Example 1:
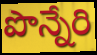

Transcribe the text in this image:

పొన్నేరి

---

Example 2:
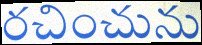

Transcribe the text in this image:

రచించును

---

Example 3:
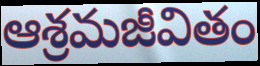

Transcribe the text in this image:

ఆశ్రమజీవితం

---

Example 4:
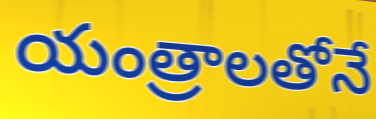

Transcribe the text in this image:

యంత్రాలతోనే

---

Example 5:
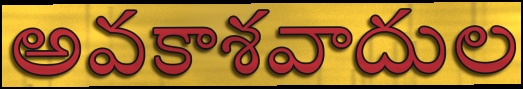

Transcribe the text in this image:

అవకాశవాదుల